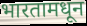
भारतामधून